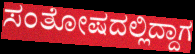
ಸಂತೋಷದಲ್ಲಿದ್ದಾಗ